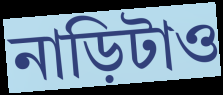
নাড়িটাও